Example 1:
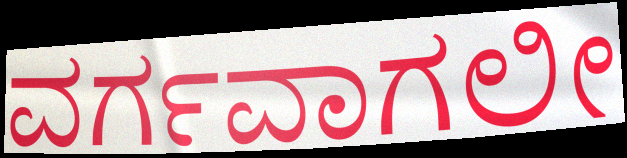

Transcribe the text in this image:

ವರ್ಗವಾಗಲೀ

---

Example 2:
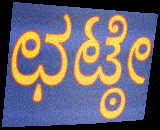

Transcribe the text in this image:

ಛಟ್ಠೇ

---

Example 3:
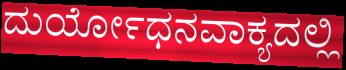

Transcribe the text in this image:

ದುರ್ಯೋಧನವಾಕ್ಯದಲ್ಲಿ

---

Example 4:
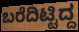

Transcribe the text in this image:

ಬರೆದಿಟ್ಟಿದ್ದ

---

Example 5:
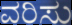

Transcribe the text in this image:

ವರಿಸು